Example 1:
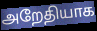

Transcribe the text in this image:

அறேதியாக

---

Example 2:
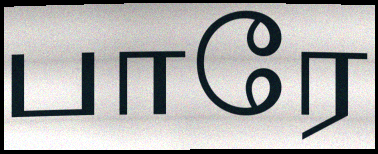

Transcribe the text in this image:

பாரே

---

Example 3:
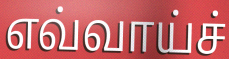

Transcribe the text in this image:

எவ்வாய்ச்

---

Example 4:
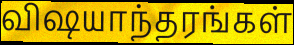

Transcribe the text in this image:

விஷயாந்தரங்கள்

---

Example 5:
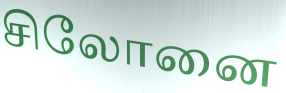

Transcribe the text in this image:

சிலோனை